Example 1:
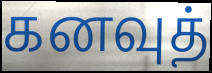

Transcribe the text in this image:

கனவுத்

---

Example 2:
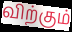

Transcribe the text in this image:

விற்கும்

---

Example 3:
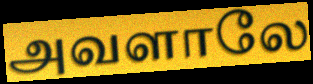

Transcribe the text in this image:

அவளாலே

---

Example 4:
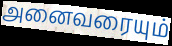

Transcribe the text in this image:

அனைவரையும்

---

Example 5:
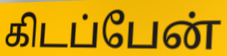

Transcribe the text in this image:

கிடப்பேன்